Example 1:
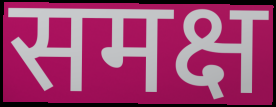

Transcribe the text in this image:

समक्ष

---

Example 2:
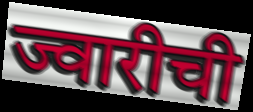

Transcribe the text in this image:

ज्वारीची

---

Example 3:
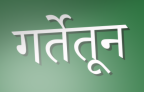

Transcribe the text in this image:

गर्तेतून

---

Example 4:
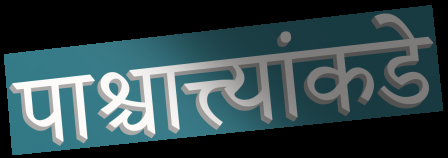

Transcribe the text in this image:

पाश्चात्त्यांकडे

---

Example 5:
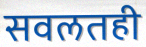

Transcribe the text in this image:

सवलतही